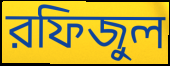
রফিজুল